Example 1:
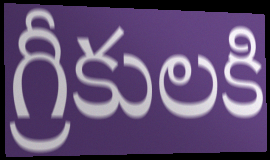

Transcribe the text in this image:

గ్రీకులకి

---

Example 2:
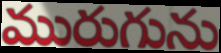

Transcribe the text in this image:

మురుగును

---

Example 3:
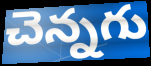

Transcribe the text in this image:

చెన్నగు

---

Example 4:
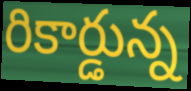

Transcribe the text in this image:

రికార్డున్న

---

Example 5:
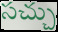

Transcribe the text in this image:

సచ్చు